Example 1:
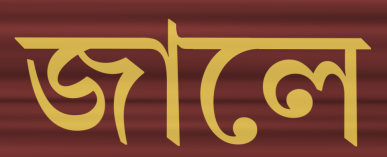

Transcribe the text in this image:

জালে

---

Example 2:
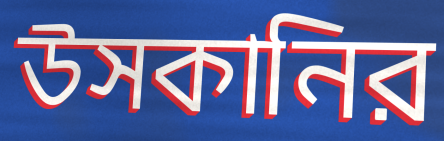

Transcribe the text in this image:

উসকানির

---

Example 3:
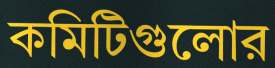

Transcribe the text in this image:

কমিটিগুলোর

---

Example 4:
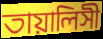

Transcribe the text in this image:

তায়ালিসী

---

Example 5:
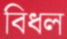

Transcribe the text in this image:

বিধল